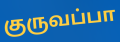
குருவப்பா